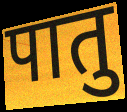
पातु